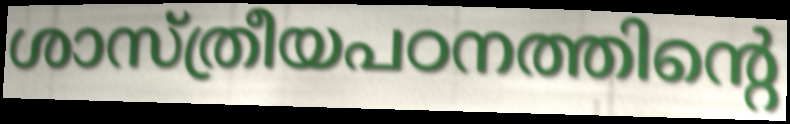
ശാസ്ത്രീയപഠനത്തിന്റെ